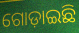
ଗୋଡ଼ାଇଛି